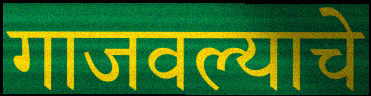
गाजवल्याचे